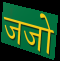
जजो